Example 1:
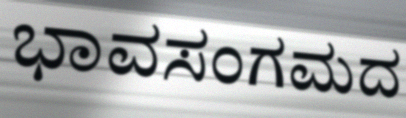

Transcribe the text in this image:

ಭಾವಸಂಗಮದ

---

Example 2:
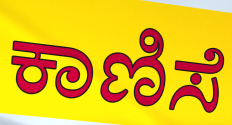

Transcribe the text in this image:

ಕಾಣಿಸೆ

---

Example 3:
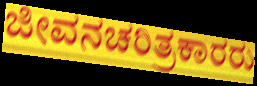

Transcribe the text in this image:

ಜೀವನಚರಿತ್ರಕಾರರು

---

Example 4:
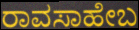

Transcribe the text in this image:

ರಾವಸಾಹೇಬ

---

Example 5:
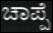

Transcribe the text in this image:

ಚಾಪ್ಪೆ